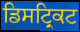
ਡਿਸਟ੍ਰਿਕਟ